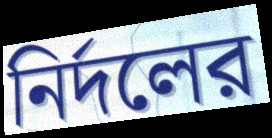
নির্দলের